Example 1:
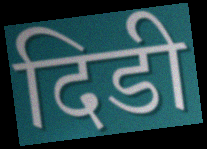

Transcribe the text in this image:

दिडी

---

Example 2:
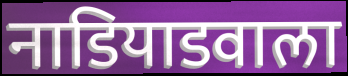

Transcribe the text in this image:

नाडियाडवाला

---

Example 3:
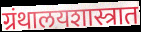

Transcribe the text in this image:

ग्रंथालयशास्त्रात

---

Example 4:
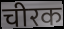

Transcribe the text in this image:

चीरक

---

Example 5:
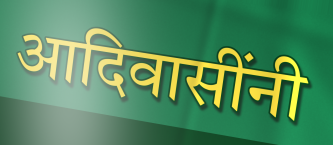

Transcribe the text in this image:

आदिवासींनी